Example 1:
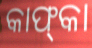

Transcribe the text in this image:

କାଫ୍‍କା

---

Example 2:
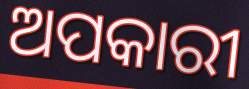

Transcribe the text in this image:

ଅପକାରୀ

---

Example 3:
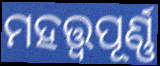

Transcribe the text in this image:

ମହତ୍ତ୍ୱପୂର୍ଣ୍ଣ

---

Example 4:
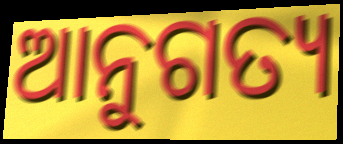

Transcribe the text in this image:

ଆନୁଗତ୍ୟ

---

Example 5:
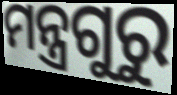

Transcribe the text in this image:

ମନ୍ତ୍ରଗୁରୁ